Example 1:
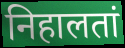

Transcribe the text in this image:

निहालतां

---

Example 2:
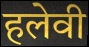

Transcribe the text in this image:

हलेवी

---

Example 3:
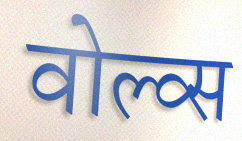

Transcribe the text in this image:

वोल्व्स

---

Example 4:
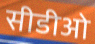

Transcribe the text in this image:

सीडीओ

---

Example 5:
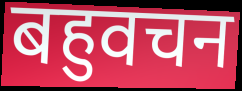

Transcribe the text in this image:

बहुवचन